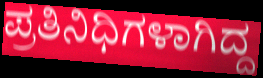
ಪ್ರತಿನಿಧಿಗಳಾಗಿದ್ದ